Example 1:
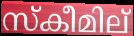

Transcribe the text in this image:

സ്കീമില്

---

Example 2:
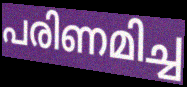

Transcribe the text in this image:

പരിണമിച്ച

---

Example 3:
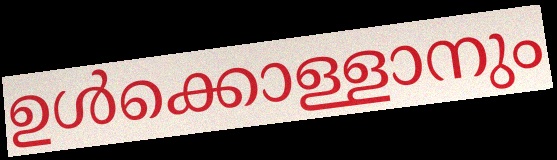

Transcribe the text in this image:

ഉൾക്കൊള്ളാനും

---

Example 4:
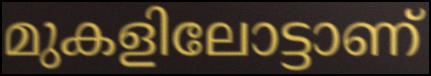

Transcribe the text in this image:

മുകളിലോട്ടാണ്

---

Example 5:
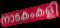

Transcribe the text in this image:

നാടകംകളി